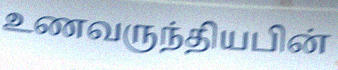
உணவருந்தியபின்